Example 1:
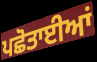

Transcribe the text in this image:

ਪਛੋਤਾਈਆਂ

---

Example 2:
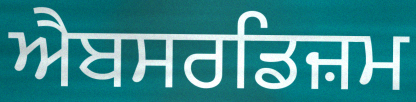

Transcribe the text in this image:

ਐਬਸਰਡਿਜ਼ਮ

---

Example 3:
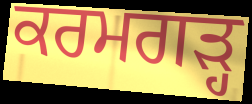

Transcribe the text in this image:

ਕਰਮਗੜ੍ਹ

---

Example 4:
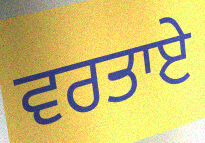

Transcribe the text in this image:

ਵਰਤਾਏ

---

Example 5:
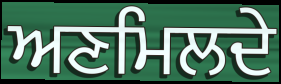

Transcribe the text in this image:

ਅਣਮਿਲਦੇ